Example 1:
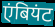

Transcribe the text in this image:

एंबियंट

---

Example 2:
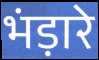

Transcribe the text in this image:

भंड़ारे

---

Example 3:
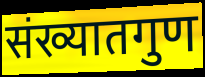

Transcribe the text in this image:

संख्यातगुण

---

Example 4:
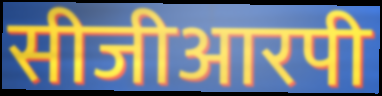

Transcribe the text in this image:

सीजीआरपी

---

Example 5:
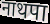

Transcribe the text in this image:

नाथपा